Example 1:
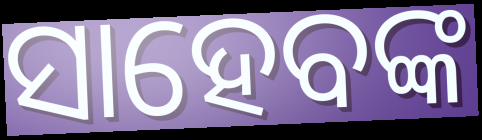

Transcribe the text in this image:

ସାହେବଙ୍କ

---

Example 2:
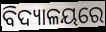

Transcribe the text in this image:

ବିଦ୍ଯାଳୟରେ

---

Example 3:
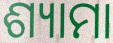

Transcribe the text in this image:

ଶ୍ୟାମା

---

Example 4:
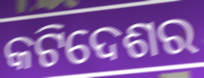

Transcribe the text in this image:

କଟିଦେଶର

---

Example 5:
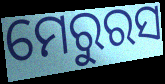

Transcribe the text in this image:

ମେରୁରସ